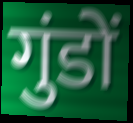
गुंडों